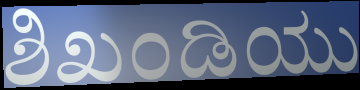
ಶಿಖಂಡಿಯು